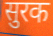
सुरक